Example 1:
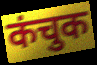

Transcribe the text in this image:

कंचुक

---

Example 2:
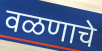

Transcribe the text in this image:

वळणाचे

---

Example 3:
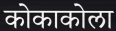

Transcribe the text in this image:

कोकाकोला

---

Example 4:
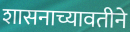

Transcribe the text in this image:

शासनाच्यावतीने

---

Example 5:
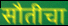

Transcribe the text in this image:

सौतीचा